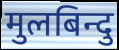
मुलबिन्दु